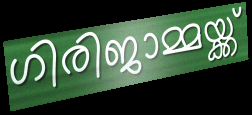
ഗിരിജാമ്മയ്ക്ക്